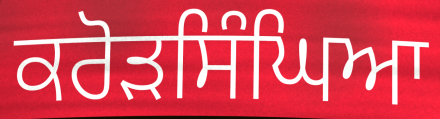
ਕਰੋੜਸਿੰਘਿਆ